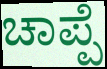
ಚಾಪ್ಪೆ